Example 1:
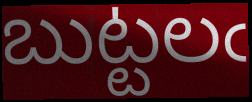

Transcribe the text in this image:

బుట్టలఁ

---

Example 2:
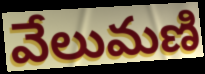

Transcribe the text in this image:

వేలుమణి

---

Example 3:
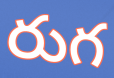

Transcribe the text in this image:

రుగ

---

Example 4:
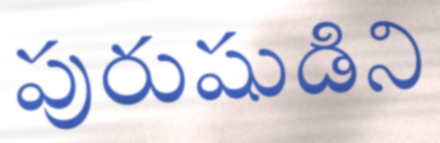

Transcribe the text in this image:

పురుషుడిని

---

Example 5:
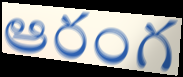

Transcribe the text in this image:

ఆరంగ